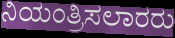
ನಿಯಂತ್ರಿಸಲಾರರು